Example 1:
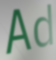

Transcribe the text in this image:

Ad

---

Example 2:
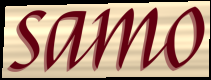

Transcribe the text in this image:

samo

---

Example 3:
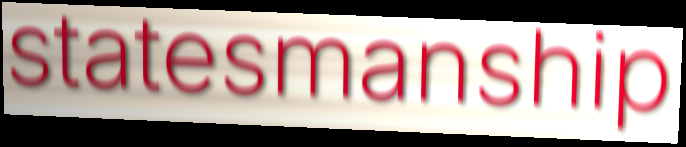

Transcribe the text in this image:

statesmanship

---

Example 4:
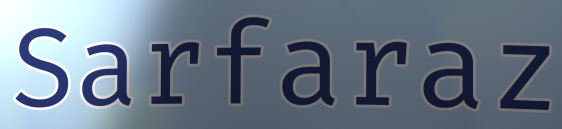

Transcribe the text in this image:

Sarfaraz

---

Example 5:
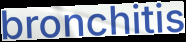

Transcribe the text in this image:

bronchitis